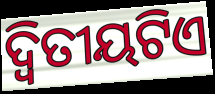
ଦ୍ୱିତୀୟଟିଏ